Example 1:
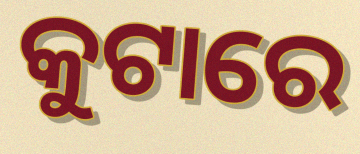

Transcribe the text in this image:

କୁଟାରେ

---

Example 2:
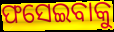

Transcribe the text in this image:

ଫସେଇବାକୁ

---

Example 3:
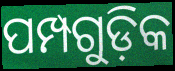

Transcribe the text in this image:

ପମ୍ପଗୁଡ଼ିକ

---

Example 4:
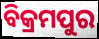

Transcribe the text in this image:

ବିକ୍ରମପୁର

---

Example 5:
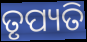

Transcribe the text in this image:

ତୃପ୍ୟତି